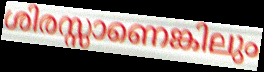
ശിരസ്സാണെങ്കിലും